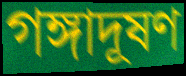
গঙ্গাদূষণ